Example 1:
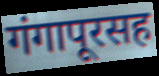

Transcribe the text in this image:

गंगापूरसह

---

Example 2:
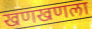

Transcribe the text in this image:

खणखणला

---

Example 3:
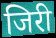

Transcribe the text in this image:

जिरी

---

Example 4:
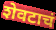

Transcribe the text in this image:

शेवटाचं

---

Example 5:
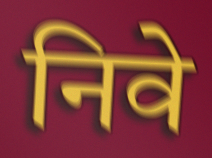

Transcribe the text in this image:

निवे